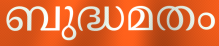
ബുദ്ധമതം